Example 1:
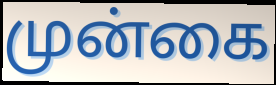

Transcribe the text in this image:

முன்கை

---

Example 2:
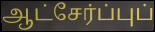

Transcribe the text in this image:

ஆட்சேர்ப்புப்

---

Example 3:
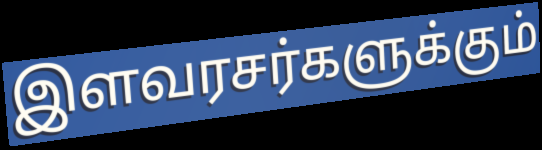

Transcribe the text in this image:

இளவரசர்களுக்கும்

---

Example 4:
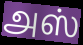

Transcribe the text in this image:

அஸ்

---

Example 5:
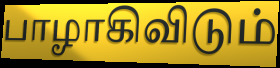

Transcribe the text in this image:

பாழாகிவிடும்